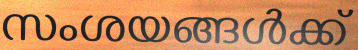
സംശയങ്ങൾക്ക്